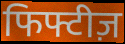
फिफ्टीज़